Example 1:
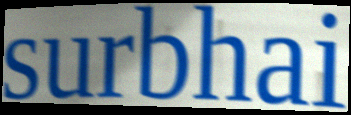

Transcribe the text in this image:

surbhai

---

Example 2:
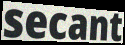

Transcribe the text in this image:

secant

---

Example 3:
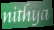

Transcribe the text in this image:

nithya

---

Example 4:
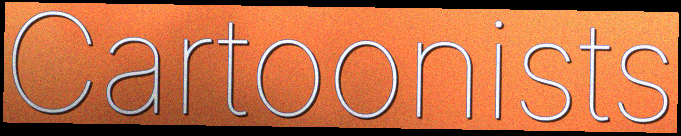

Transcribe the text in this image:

Cartoonists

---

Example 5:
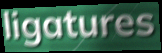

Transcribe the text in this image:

ligatures